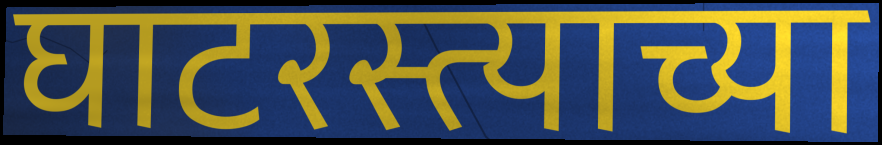
घाटरस्त्याच्या